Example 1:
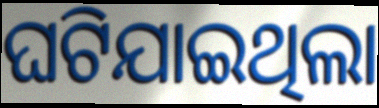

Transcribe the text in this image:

ଘଟିଯାଇଥିଲା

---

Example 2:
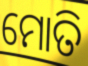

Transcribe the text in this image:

ମୋତି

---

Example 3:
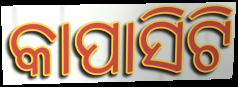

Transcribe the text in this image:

କାପାସିଟି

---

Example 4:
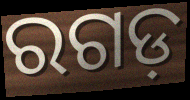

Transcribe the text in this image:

ରଗଡ଼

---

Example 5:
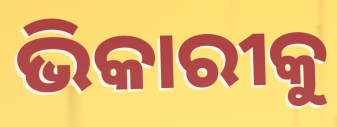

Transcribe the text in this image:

ଭିକାରୀକୁ